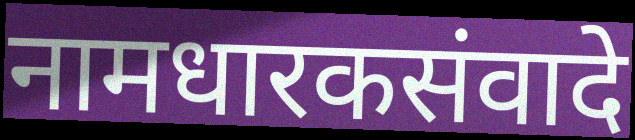
नामधारकसंवादे